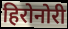
हिरोनोरी